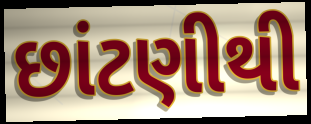
છાંટણીથી